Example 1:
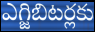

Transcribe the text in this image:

ఎగ్జిబిటర్లకు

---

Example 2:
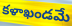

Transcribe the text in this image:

కళాఖండమే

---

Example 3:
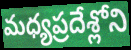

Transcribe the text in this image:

మధ్యప్రదేశ్లోని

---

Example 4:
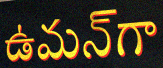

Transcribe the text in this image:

ఉమన్‌గా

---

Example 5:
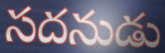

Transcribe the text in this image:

సదనుడు